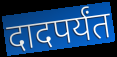
दादपर्यंत